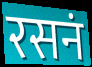
रसनं